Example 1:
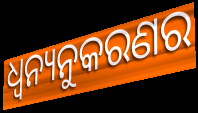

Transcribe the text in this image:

ଧ୍ବନ୍ୟନୁକରଣର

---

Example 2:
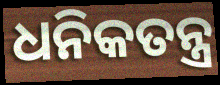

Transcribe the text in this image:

ଧନିକତନ୍ତ୍ର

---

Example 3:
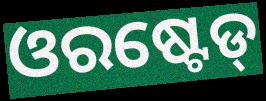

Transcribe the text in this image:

ଓରଷ୍ଟେଡ୍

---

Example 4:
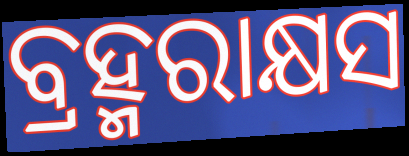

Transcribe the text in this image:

ବ୍ରହ୍ମରାକ୍ଷସ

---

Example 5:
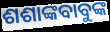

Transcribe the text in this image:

ଶଶାଙ୍କବାବୁଙ୍କ